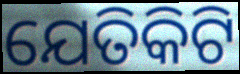
ଯେତିକିଟି